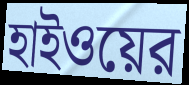
হাইওয়ের